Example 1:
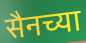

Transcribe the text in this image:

सैनच्या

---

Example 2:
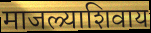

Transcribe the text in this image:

माजल्याशिवाय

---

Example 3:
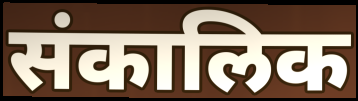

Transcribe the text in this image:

संकालिक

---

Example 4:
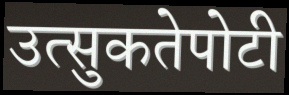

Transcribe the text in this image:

उत्सुकतेपोटी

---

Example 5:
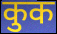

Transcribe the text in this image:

कुक